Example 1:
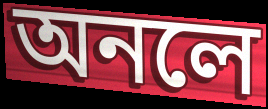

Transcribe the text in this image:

অনলে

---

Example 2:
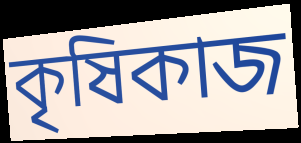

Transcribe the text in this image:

কৃষিকাজ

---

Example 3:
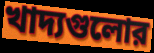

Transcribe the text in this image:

খাদ্যগুলোর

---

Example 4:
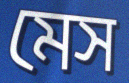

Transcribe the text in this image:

মেস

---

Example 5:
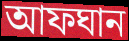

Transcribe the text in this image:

আফঘান